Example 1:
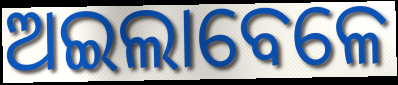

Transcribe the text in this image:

ଅଇଲାବେଳେ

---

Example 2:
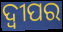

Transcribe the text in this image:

ଦ୍ଵୀପର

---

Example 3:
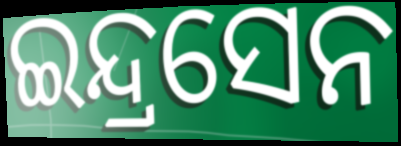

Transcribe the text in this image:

ଇନ୍ଦ୍ରସେନ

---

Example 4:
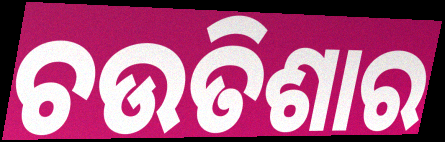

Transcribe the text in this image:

ଚଉତିଶାର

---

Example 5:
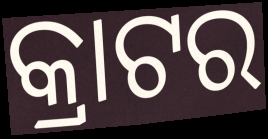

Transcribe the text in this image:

କ୍ରାଟର